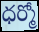
ధర్మో